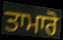
ਤਾਮਾਰੋ